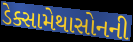
ડેક્સામેથાસોનની